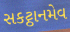
સકટ્ઠાનમેવ